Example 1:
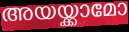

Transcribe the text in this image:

അയയ്ക്കാമോ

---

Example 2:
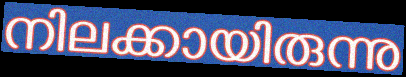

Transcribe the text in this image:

നിലക്കായിരുന്നു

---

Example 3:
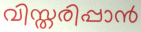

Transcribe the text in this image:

വിസ്തരിപ്പാൻ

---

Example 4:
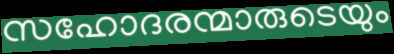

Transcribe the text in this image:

സഹോദരന്മാരുടെയും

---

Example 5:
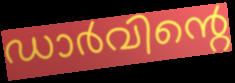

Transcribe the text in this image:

ഡാർവിന്റെ